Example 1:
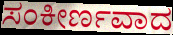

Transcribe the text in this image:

ಸಂಕೀರ್ಣವಾದ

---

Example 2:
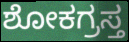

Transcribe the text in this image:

ಶೋಕಗ್ರಸ್ತ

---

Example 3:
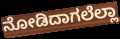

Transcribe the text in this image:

ನೋಡಿದಾಗಲೆಲ್ಲಾ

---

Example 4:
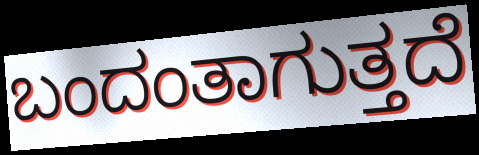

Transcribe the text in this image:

ಬಂದಂತಾಗುತ್ತದೆ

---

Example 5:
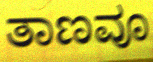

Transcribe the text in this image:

ತಾಣವೂ